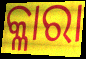
କ୍ଳାରା